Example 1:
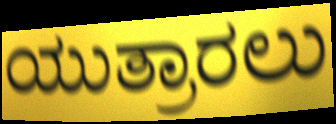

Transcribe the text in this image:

ಯುತ್ರಾರಲು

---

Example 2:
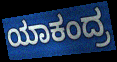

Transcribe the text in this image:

ಯಾಕಂದ್ರ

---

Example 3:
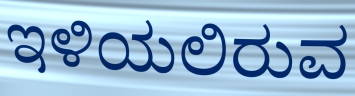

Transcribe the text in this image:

ಇಳಿಯಲಿರುವ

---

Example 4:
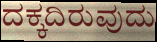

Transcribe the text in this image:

ದಕ್ಕದಿರುವುದು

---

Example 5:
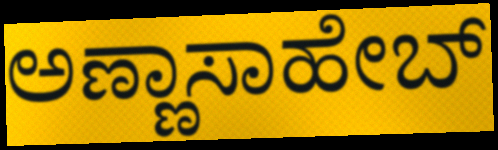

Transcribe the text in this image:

ಅಣ್ಣಾಸಾಹೇಬ್